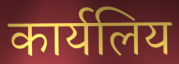
कार्यलिय